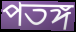
পতঙ্গ